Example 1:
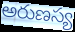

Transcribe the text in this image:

అరుణస్య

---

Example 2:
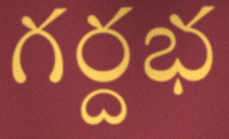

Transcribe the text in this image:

గర్దభ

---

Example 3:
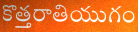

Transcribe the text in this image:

కొత్తరాతియుగం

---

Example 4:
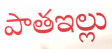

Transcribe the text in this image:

పాతఇల్లు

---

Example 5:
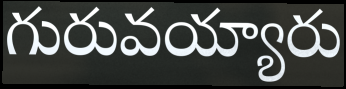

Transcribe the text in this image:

గురువయ్యారు